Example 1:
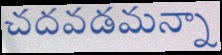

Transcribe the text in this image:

చదవడమన్నా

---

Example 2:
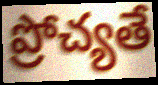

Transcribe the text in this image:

ప్రోచ్యతే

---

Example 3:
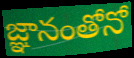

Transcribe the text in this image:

జ్ఞానంతోనో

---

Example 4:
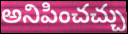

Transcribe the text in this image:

అనిపించచ్చు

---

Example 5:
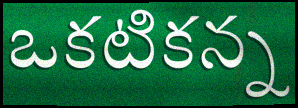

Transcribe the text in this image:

ఒకటికన్న